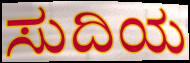
ಸುದಿಯ